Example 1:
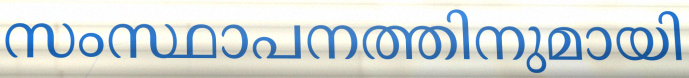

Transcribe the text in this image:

സംസ്ഥാപനത്തിനുമായി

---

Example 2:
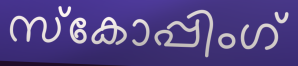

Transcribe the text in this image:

സ്കോപ്പിംഗ്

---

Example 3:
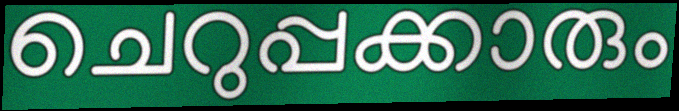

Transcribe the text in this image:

ചെറുപ്പക്കാരും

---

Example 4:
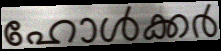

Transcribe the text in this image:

ഹോൾക്കർ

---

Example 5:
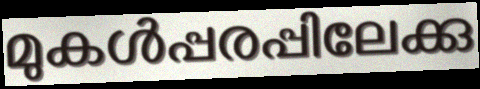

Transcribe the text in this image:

മുകൾപ്പരപ്പിലേക്കു